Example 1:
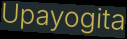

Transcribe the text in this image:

Upayogita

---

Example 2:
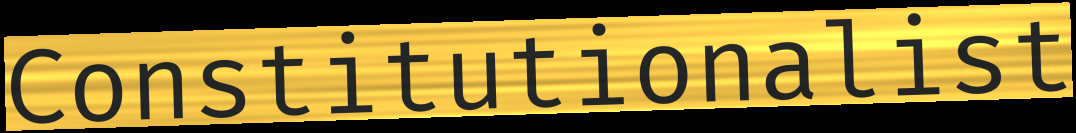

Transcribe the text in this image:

Constitutionalist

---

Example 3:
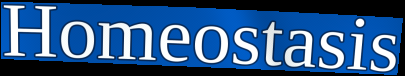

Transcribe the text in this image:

Homeostasis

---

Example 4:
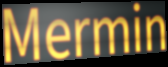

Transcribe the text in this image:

Mermin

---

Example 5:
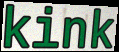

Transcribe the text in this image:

kink